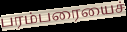
பரம்பரையைச்